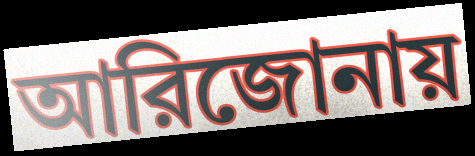
আরিজোনায়